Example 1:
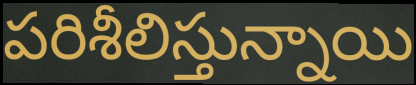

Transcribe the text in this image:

పరిశీలిస్తున్నాయి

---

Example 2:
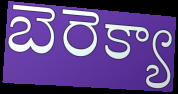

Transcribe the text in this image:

బెరెక్యా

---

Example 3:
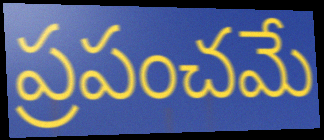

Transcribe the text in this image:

ప్రపంచమే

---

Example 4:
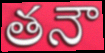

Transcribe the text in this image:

తనౌ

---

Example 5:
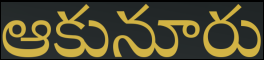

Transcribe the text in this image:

ఆకునూరు